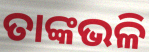
ତାଙ୍କଭଳି